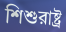
শিশুরাষ্ট্র